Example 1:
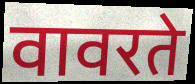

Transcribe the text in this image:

वावरते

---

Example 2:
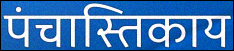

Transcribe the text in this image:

पंचास्तिकाय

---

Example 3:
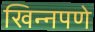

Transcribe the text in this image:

खिन्नपणे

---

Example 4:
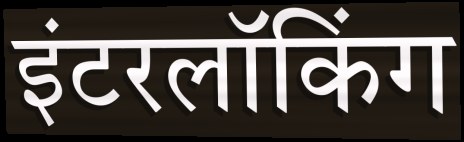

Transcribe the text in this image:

इंटरलॉकिंग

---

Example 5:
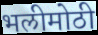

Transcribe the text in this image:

भलीमोठी